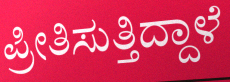
ಪ್ರೀತಿಸುತ್ತಿದ್ದಾಳೆ